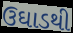
ઉઘાડથી